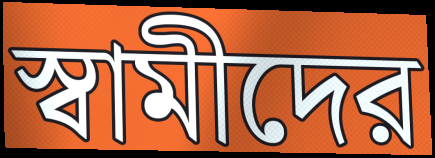
স্বামীদের